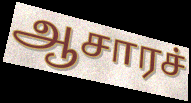
ஆசாரச்